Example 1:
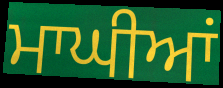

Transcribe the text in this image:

ਮਾਘੀਆਂ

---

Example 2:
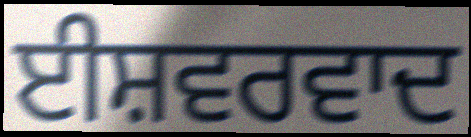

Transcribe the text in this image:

ਈਸ਼ਵਰਵਾਦ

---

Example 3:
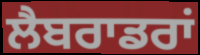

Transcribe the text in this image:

ਲੈਬਰਾਡਰਾਂ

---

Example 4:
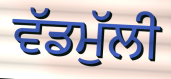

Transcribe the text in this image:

ਵੱਡਮੁੱਲੀ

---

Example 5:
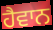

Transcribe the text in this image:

ਹੈਵਾਨ